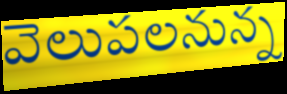
వెలుపలనున్న